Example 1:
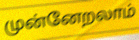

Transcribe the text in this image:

முன்னேறலாம்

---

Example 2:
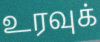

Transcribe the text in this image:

உரவுக்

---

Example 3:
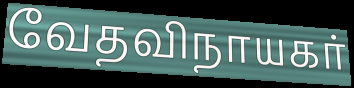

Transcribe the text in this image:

வேதவிநாயகர்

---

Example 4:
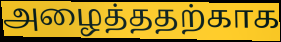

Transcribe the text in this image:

அழைத்ததற்காக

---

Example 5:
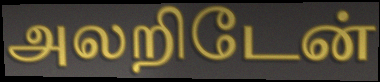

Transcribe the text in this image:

அலறிடேன்